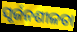
ସୃର୍ଜନଶୀଳତା